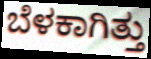
ಬೆಳಕಾಗಿತ್ತು